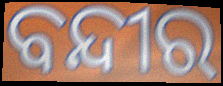
ବନ୍ଦୀର